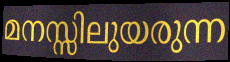
മനസ്സിലുയരുന്ന